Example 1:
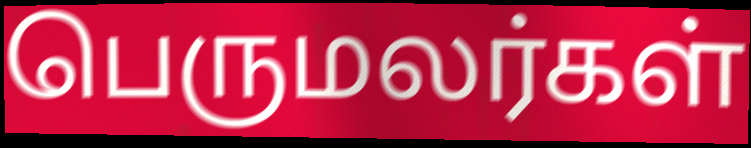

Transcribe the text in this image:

பெருமலர்கள்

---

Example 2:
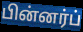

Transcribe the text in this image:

பின்னர்ப்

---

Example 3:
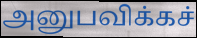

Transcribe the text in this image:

அனுபவிக்கச்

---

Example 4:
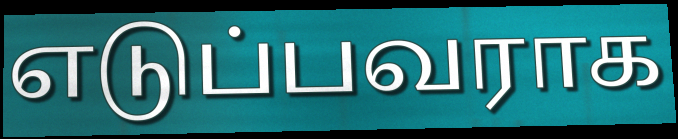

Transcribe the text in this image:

எடுப்பவராக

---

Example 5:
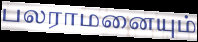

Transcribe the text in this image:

பலராமனையும்